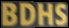
BDHS